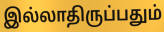
இல்லாதிருப்பதும்